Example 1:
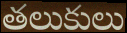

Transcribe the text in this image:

తలుకులు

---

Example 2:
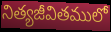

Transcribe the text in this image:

నిత్యజీవితములో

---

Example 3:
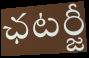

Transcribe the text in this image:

ఛటర్జీ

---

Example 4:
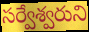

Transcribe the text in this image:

సర్వేశ్వరుని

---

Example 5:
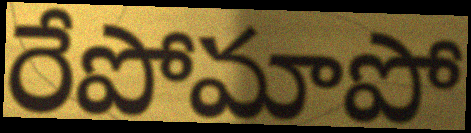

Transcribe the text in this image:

రేపోమాపో